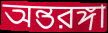
অন্তরঙ্গা